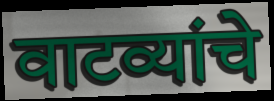
वाटव्यांचे